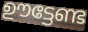
ഊട്ടേണ്ട